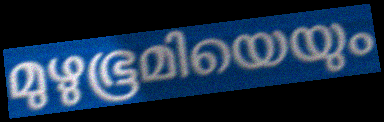
മുഴുഭൂമിയെയും